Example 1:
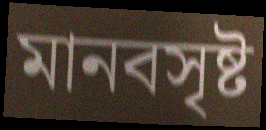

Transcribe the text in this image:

মানবসৃষ্ট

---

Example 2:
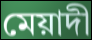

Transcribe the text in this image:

মেয়াদী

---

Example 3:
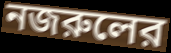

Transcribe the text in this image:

নজরুলের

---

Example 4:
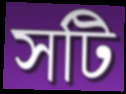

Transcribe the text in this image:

সটি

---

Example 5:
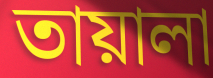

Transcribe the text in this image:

তায়ালা